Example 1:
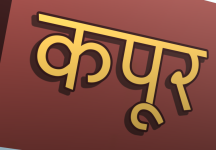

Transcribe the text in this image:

कपूर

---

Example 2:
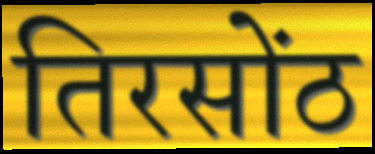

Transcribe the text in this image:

तिरसोंठ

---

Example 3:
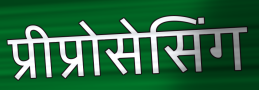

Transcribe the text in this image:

प्रीप्रोसेसिंग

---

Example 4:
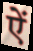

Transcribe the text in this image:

ऐं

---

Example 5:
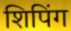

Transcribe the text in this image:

शिपिंग